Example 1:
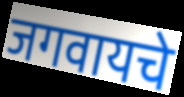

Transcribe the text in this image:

जगवायचे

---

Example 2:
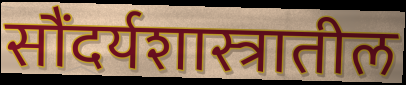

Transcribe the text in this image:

सौंदर्यशास्त्रातील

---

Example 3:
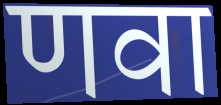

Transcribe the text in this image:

णवा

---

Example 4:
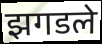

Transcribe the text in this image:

झगडले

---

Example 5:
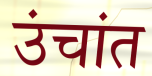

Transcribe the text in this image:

उंचांत